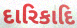
દારિકાદિ